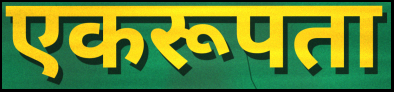
एकरूपता